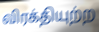
விரக்தியுற்ற